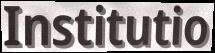
Institutio